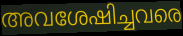
അവശേഷിച്ചവരെ